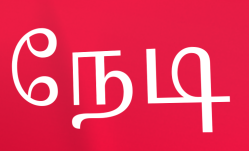
நேடி